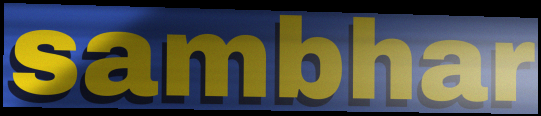
sambhar